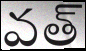
వత్